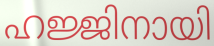
ഹജ്ജിനായി